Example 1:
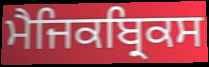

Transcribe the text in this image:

ਮੈਜਿਕਬ੍ਰਿਕਸ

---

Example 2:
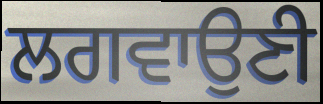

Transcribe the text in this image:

ਲਗਵਾਉਣੀ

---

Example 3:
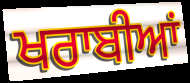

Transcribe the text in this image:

ਖਰਾਬੀਆਂ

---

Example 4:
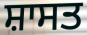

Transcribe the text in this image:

ਸ਼ਾਸਤ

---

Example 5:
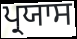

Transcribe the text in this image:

ਪ੍ਰਯਾਸ